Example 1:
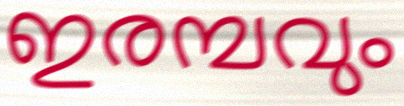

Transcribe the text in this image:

ഇരമ്പവും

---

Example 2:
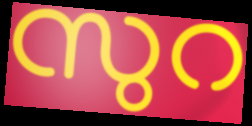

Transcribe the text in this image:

സുറ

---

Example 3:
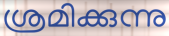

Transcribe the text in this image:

ശ്രമിക്കുന്നു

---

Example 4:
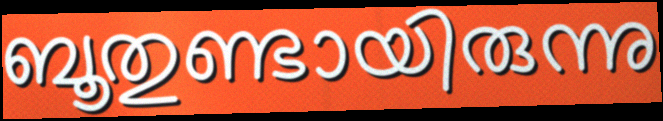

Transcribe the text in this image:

ബൂതുണ്ടായിരുന്നു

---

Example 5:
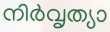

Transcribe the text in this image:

നിർവൃത്യാ